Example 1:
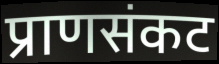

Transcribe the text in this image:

प्राणसंकट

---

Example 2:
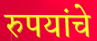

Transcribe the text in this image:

रुपयांचे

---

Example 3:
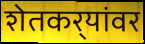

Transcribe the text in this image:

शेतकर्‍यांवर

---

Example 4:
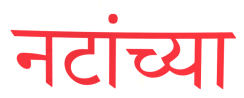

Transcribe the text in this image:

नटांच्या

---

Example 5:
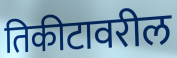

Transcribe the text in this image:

तिकीटावरील